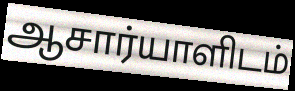
ஆசார்யாளிடம்